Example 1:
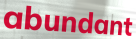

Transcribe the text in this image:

abundant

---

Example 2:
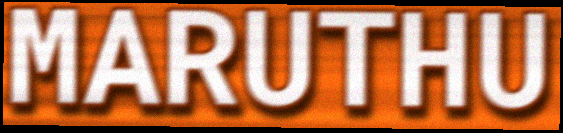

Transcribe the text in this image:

MARUTHU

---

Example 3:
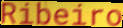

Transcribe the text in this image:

Ribeiro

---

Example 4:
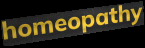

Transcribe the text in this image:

homeopathy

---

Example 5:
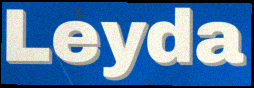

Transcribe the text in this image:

Leyda